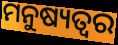
ମନୁଷ୍ୟତ୍ବର